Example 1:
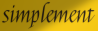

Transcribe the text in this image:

simplement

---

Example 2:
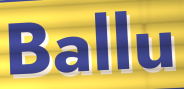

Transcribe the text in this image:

Ballu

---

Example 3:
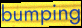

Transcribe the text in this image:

bumping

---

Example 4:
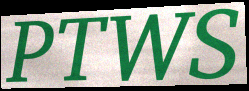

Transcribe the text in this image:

PTWS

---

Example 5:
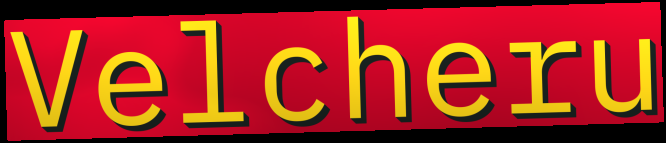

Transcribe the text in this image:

Velcheru